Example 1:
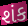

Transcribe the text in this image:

શંક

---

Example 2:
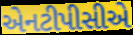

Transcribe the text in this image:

એનટીપીસીએ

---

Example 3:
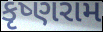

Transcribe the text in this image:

કૃષ્ણરામ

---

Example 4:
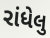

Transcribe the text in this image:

રાંધેલુ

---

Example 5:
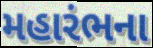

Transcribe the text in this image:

મહારંભના